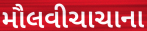
મૌલવીચાચાના